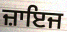
ਜ਼ਾਇਜ